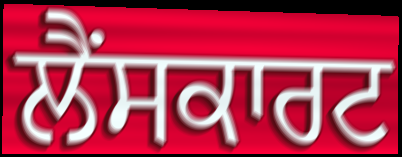
ਲੈਂਸਕਾਰਟ